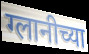
ग्लानीच्या